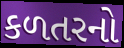
કળતરનો